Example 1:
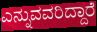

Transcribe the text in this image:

ಎನ್ನುವವರಿದ್ದಾರೆ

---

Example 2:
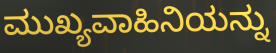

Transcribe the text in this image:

ಮುಖ್ಯವಾಹಿನಿಯನ್ನು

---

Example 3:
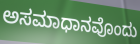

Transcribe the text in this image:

ಅಸಮಾಧಾನವೊಂದು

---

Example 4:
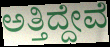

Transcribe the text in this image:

ಅತ್ತಿದ್ದೇವೆ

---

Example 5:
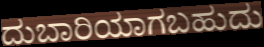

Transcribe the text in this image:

ದುಬಾರಿಯಾಗಬಹುದು